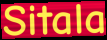
Sitala